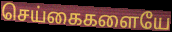
செய்கைகளையே